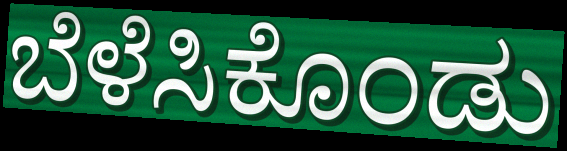
ಬೆಳೆಸಿಕೊಂಡು